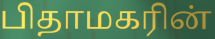
பிதாமகரின்